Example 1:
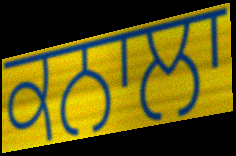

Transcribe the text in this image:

ਕਨਾਲਾ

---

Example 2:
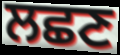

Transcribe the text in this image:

ਲਛਣ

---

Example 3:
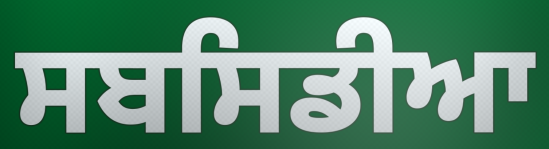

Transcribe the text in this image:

ਸਬਸਿਡੀਆ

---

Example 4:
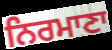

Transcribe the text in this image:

ਨਿਰਮਾਣਾ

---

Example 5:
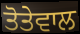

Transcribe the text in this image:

ਤੋਤੇਵਾਲ